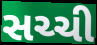
સચ્ચી